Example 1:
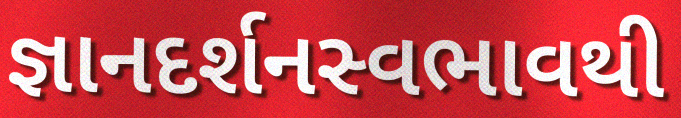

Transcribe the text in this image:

જ્ઞાનદર્શનસ્વભાવથી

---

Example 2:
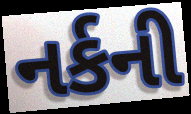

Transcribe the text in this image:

નર્કની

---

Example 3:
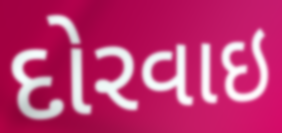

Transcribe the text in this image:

દોરવાઇ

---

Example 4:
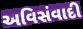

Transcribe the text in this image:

અવિસંવાદી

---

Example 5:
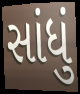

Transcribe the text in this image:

સાંધું